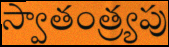
స్వాతంత్ర్యపు